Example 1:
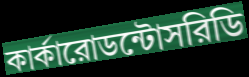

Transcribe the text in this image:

কার্কারোডন্টোসরিডি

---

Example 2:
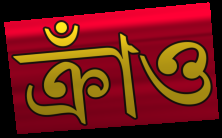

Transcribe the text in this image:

ক্রাঁও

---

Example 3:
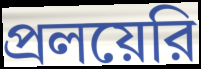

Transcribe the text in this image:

প্রলয়েরি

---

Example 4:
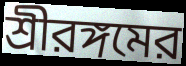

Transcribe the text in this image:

শ্রীরঙ্গমের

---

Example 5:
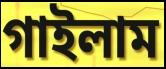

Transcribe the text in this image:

গাইলাম